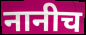
नानीच